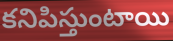
కనిపిస్తుంటాయి